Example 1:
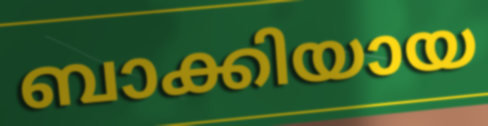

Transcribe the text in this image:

ബാക്കിയായ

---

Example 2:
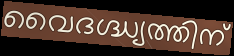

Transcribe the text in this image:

വൈദഗ്ദ്ധ്യത്തിന്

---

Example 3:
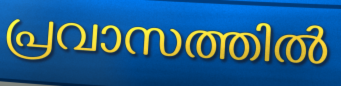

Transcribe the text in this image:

പ്രവാസത്തിൽ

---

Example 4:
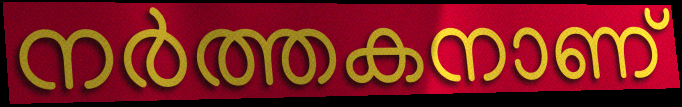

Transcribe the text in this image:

നർത്തകനാണ്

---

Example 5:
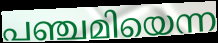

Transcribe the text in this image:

പഞ്ചമിയെന്ന